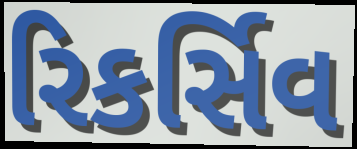
રિકર્સિવ